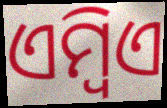
ଏମ୍ବିଏ